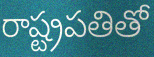
రాష్ట్రపతితో